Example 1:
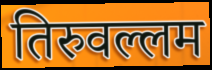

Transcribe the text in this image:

तिरुवल्लम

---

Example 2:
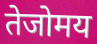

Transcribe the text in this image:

तेजोमय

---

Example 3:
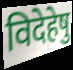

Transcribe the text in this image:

विदेहेषु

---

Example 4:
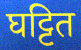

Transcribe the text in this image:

घट्टित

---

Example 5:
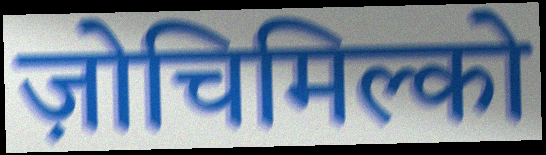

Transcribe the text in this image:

ज़ोचिमिल्को